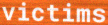
victims